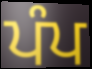
ਪੰਪ